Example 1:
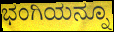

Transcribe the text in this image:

ಭಂಗಿಯನ್ನೂ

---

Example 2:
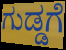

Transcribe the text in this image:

ಗುಡ್ಡಗೆ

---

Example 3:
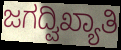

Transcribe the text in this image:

ಜಗದ್ವಿಖ್ಯಾತಿ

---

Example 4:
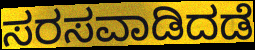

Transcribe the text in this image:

ಸರಸವಾಡಿದಡೆ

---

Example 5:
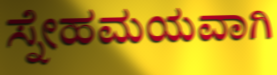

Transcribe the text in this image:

ಸ್ನೇಹಮಯವಾಗಿ